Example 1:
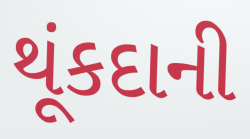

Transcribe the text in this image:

થૂંકદાની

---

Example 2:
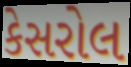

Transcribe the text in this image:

કેસરોલ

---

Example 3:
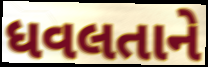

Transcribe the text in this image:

ધવલતાને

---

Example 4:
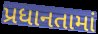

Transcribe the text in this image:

પ્રધાનતામાં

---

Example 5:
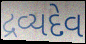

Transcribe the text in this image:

દ્રવ્યદેવ